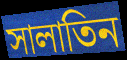
সালাতিন